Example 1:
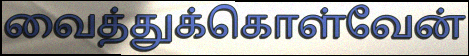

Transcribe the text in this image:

வைத்துக்கொள்வேன்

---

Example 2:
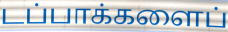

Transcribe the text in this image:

டப்பாக்களைப்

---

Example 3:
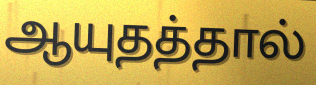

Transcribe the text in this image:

ஆயுதத்தால்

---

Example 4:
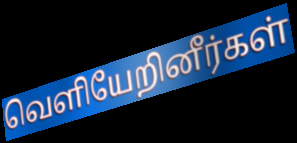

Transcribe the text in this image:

வெளியேறினீர்கள்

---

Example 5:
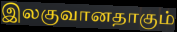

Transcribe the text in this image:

இலகுவானதாகும்